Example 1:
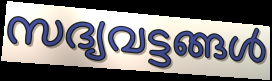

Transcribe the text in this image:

സദ്യവട്ടങ്ങൾ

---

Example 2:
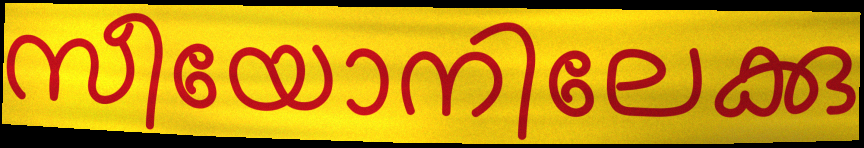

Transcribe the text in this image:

സീയോനിലേക്കു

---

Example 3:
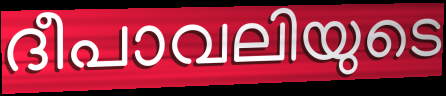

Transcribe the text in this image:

ദീപാവലിയുടെ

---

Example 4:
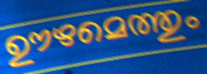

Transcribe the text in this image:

ഊഴമെത്തും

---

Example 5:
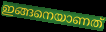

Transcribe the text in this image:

ഇങ്ങനെയാണത്